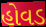
હોવડ